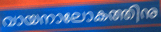
വായനാലോകത്തിനു